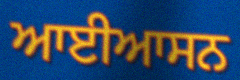
ਆਈਆਸਨ